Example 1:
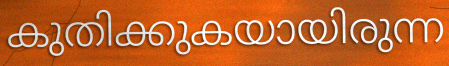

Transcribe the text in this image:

കുതിക്കുകയായിരുന്ന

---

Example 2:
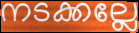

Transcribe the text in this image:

നടക്കല്ലേ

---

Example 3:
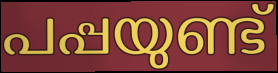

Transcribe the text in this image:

പപ്പയുണ്ട്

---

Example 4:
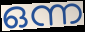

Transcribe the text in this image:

ഒന്ന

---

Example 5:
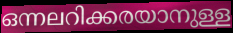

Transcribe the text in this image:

ഒന്നലറിക്കരയാനുള്ള